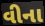
વીના